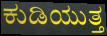
ಕುಡಿಯುತ್ತ